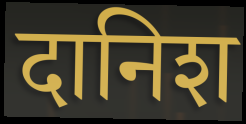
दानिश